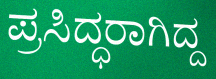
ಪ್ರಸಿದ್ಧರಾಗಿದ್ದ